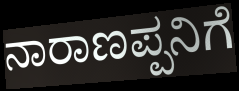
ನಾರಾಣಪ್ಪನಿಗೆ